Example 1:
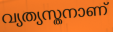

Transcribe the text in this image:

വ്യത്യസ്തനാണ്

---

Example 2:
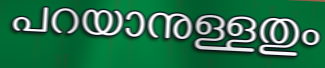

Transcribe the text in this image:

പറയാനുള്ളതും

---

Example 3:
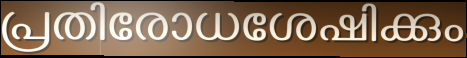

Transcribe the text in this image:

പ്രതിരോധശേഷിക്കും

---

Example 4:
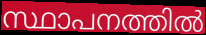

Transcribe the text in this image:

സ്ഥാപനത്തിൽ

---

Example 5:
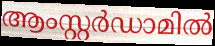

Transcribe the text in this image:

ആംസ്റ്റർഡാമിൽ